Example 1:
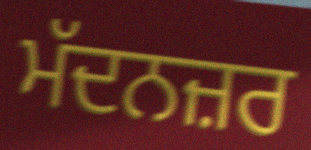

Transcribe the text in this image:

ਮੱਦਨਜ਼ਰ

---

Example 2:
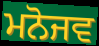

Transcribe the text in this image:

ਮਨੋਜਵ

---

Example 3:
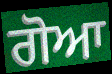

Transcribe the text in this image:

ਗੋਆ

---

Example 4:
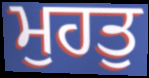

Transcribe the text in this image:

ਮੁਹਤੁ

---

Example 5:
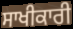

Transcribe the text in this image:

ਸਾਖੀਕਾਰੀ